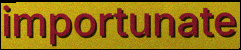
importunate